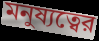
মনুষ্যত্বের